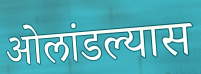
ओलांडल्यास